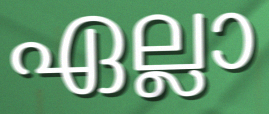
ഏല്ലാ